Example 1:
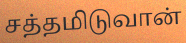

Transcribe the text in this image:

சத்தமிடுவான்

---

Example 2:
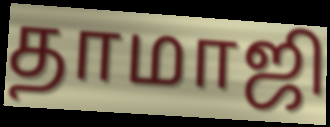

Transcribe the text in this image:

தாமாஜி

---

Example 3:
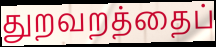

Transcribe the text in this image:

துறவறத்தைப்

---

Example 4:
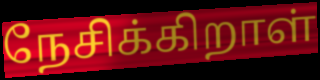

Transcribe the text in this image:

நேசிக்கிறாள்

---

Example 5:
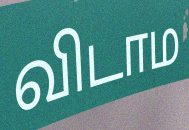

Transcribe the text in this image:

விடாம